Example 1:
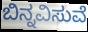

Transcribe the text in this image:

ಬಿನ್ನವಿಸುವೆ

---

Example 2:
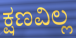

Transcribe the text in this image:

ಕ್ಷಣವಿಲ್ಲ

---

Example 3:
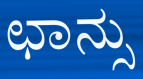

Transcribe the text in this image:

ಛಾನ್ಸು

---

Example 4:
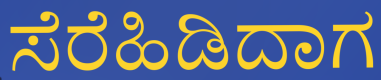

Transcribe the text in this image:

ಸೆರೆಹಿಡಿದಾಗ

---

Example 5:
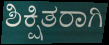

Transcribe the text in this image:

ಶಿಕ್ಷಿತರಾಗಿ